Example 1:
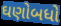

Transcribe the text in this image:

ઘણોબધો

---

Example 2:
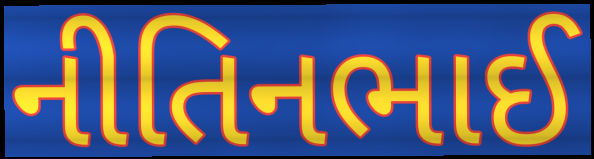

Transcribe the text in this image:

નીતિનભાઈ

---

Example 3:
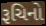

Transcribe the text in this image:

રૂચિનો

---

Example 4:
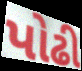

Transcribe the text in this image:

પોઢી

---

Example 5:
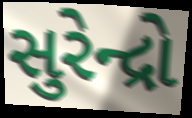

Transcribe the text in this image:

સુરેન્દ્રો